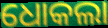
ଧୋକଲା